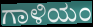
ಗಾಳಿಯಂ